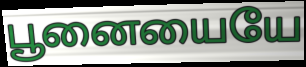
பூனையையே